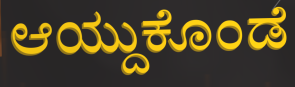
ಆಯ್ದುಕೊಂಡೆ